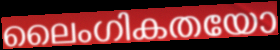
ലൈംഗികതയോ